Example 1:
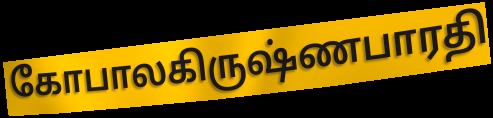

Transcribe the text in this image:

கோபாலகிருஷ்ணபாரதி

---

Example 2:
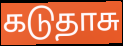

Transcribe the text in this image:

கடுதாசு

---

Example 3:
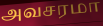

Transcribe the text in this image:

அவசரமா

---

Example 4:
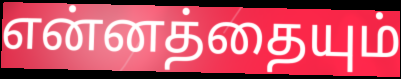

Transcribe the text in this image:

என்னத்தையும்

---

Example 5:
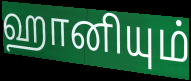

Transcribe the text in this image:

ஹானியும்